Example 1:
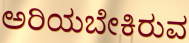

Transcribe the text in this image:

ಅರಿಯಬೇಕಿರುವ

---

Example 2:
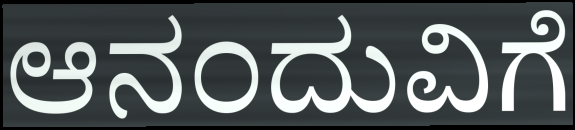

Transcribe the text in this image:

ಆನಂದುವಿಗೆ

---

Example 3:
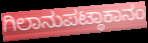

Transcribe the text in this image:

ಗಿಲಾನುಪಟ್ಠಾಕಾನಂ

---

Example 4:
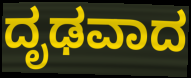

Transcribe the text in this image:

ದೃಢವಾದ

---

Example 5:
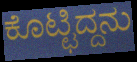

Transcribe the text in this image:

ಕೊಟ್ಟಿದ್ದನು